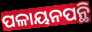
ପଳାୟନପନ୍ଥି